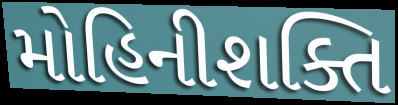
મોહિનીશક્તિ